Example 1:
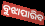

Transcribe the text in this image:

ବୁଝାପାରିବ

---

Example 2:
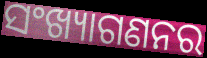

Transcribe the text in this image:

ସଂଖ୍ୟାଗଣନର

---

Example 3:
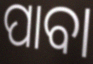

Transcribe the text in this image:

ପାବା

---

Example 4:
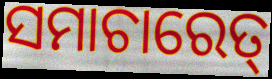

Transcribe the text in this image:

ସମାଚାରେତ୍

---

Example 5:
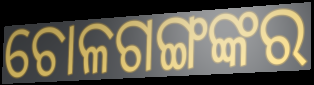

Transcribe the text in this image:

ଚୋଳଗଙ୍ଗଙ୍କର